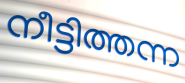
നീട്ടിത്തന്ന